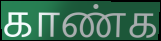
காண்க